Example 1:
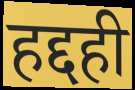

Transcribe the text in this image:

हद्दही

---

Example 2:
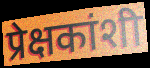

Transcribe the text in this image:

प्रेक्षकांशी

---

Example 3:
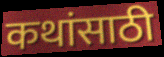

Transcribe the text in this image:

कथांसाठी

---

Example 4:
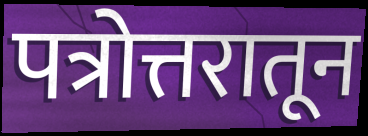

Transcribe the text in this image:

पत्रोत्तरातून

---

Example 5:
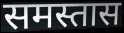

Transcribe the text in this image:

समस्तास